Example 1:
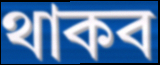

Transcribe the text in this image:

থাকব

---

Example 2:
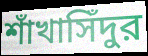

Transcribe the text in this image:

শাঁখাসিঁদুর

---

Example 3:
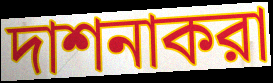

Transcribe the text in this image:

দাশনাকরা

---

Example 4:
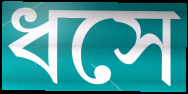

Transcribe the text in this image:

ধসে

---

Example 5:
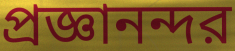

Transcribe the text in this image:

প্রজ্ঞানন্দর